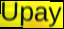
Upay